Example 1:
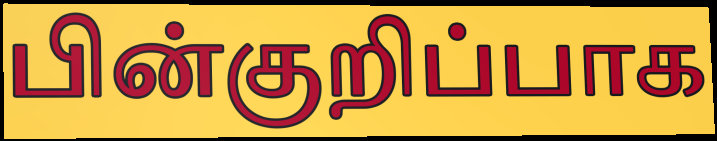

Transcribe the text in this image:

பின்குறிப்பாக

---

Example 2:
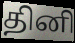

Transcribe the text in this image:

தினி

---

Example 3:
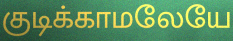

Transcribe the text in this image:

குடிக்காமலேயே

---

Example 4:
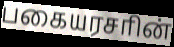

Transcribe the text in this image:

பகையரசரின்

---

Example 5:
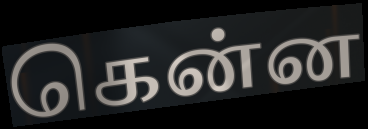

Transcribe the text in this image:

கென்ன